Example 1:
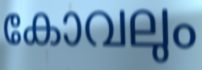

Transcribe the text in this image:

കോവലും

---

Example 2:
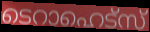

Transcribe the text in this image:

ടെറാഹെട്സ്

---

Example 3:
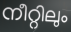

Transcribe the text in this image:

നീറ്റിലും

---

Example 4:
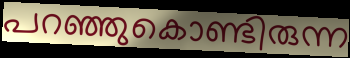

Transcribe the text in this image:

പറഞ്ഞുകൊണ്ടിരുന്ന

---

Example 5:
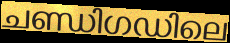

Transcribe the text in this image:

ചണ്ഡിഗഡിലെ